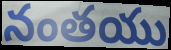
నంతయు